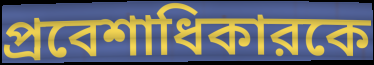
প্রবেশাধিকারকে